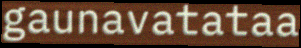
gaunavatataa